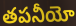
తపనీయో